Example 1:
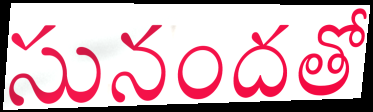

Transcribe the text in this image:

సునందతో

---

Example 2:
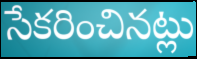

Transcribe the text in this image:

సేకరించినట్లు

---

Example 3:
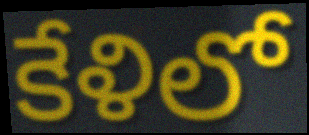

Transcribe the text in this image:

కేళిలో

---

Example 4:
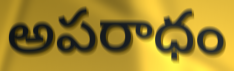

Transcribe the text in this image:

అపరాధం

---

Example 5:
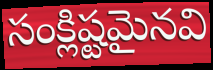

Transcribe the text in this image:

సంక్లిష్టమైనవి